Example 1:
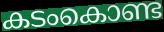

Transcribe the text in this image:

കടംകൊണ്ട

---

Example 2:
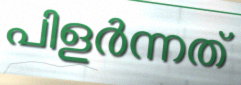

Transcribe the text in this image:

പിളർന്നത്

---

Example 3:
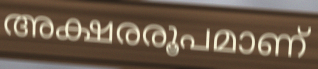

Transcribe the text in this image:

അക്ഷരരൂപമാണ്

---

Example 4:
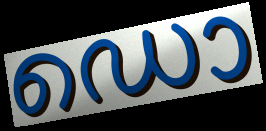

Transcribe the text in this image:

ഡൊ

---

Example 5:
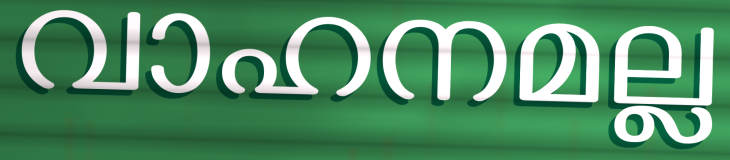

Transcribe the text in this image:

വാഹനമല്ല